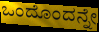
ಒಂದೊಂದನ್ನೇ